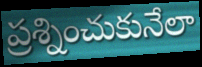
ప్రశ్నించుకునేలా